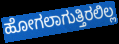
ಹೋಗಲಾಗುತ್ತಿರಲಿಲ್ಲ